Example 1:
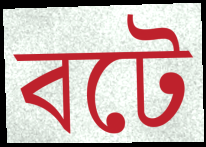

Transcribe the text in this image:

বটে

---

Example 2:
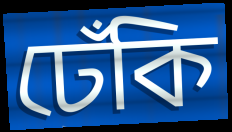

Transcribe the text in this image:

ঢেঁকি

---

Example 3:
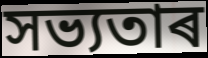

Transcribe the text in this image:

সভ্যতাৰ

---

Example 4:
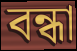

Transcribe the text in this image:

বন্ধা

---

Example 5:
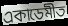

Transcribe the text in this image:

একাডেমীত